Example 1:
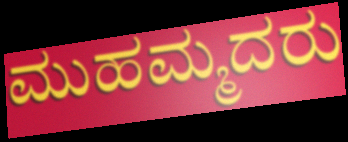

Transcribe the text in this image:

ಮುಹಮ್ಮದರು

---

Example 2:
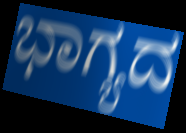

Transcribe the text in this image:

ಭಾಗ್ಯದ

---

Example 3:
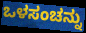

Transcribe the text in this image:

ಒಳಸಂಚನ್ನು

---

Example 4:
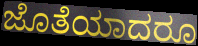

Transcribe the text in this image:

ಜೊತೆಯಾದರೂ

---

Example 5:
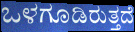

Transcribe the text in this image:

ಒಳಗೂಡಿರುತ್ತದೆ